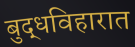
बुद्धविहारात